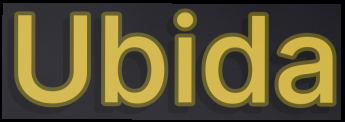
Ubida